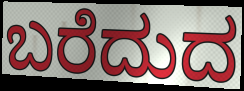
ಬರೆದುದ